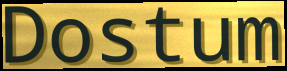
Dostum